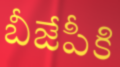
బీజేపీకి